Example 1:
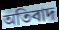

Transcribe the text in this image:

অতিবাদ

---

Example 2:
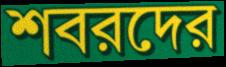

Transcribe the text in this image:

শবরদের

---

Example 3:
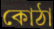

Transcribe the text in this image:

কোঠা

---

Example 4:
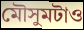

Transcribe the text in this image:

মৌসুমটাও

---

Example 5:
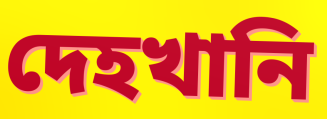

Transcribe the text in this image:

দেহখানি